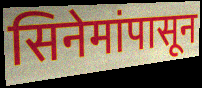
सिनेमांपासून